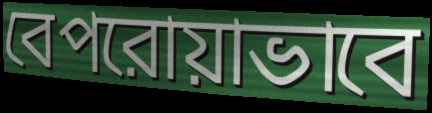
বেপরোয়াভাবে